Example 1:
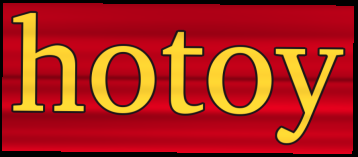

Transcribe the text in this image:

hotoy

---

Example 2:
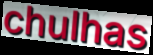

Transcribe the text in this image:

chulhas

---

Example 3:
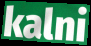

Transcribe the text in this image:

kalni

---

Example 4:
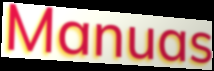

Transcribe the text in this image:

Manuas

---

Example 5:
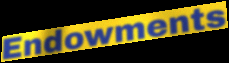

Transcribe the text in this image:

Endowments